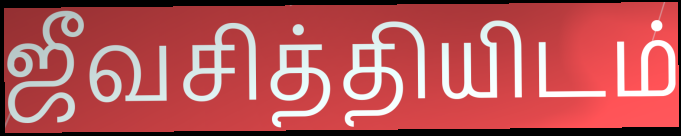
ஜீவசித்தியிடம்